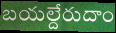
బయల్దేరుదాం